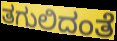
ತಗುಲಿದಂತೆ